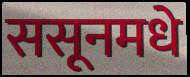
ससूनमधे